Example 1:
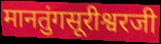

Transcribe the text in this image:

मानतुंगसूरीश्वरजी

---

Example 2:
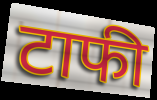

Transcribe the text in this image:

टाफी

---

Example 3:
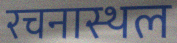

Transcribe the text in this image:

रचनास्थल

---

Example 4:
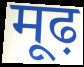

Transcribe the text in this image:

मूढ़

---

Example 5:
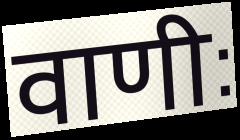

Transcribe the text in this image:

वाणीः